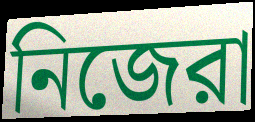
নিজেরা